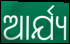
ଆର୍ଯ୍ୟ